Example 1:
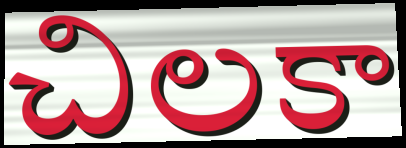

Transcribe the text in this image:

చిలకా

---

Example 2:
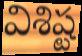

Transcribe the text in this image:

విశిష్ట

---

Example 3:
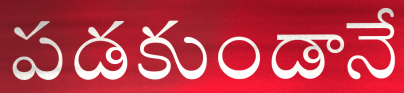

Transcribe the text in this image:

పడకుండానే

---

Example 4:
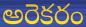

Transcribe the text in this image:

అరెకరం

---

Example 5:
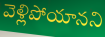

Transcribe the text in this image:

వెళ్లిపోయానని